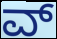
ವ್